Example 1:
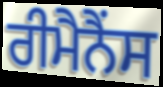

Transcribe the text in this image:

ਰੀਮੈਨੈਂਸ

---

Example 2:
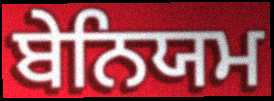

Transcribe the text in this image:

ਬੇਨਿਯਮ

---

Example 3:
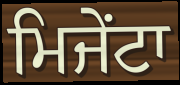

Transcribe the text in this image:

ਮਿਜੇਂਟਾ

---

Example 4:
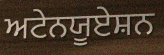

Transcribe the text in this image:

ਅਟੇਨਯੂਏਸ਼ਨ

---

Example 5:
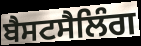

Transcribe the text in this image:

ਬੈਸਟਸੈਲਿੰਗ